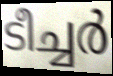
ടീച്ചർ